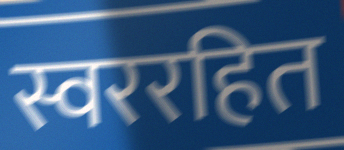
स्वररहित